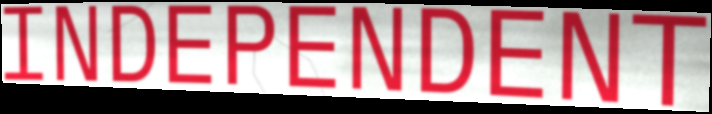
INDEPENDENT